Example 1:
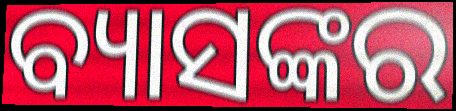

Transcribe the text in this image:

ବ୍ୟାସଙ୍କର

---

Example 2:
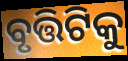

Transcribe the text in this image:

ବୃତ୍ତିଟିକୁ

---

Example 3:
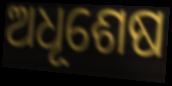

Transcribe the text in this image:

ଅଧୂଶେଷ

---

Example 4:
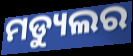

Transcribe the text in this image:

ମଡ୍ୟୁଲର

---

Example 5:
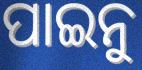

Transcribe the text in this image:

ପାଇନୁ